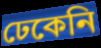
ঢেকেনি